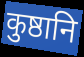
कुष्ठानि